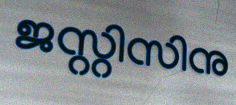
ജസ്റ്റിസിനു